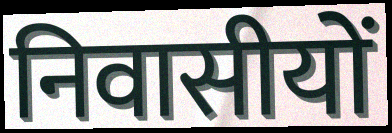
निवासीयों